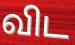
விட